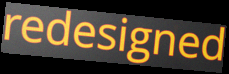
redesigned